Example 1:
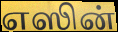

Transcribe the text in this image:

எஸின்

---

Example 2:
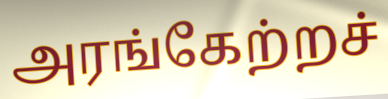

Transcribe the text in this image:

அரங்கேற்றச்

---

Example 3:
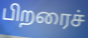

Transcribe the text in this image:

பிறரைச்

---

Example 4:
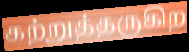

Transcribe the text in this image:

கற்றுத்தருகிற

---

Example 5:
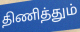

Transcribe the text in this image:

திணித்தும்